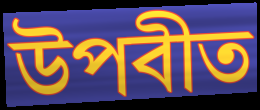
উপবীত